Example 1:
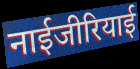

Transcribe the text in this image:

नाईजीरियाई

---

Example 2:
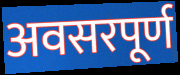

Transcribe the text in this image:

अवसरपूर्ण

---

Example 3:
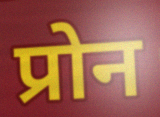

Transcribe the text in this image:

प्रोन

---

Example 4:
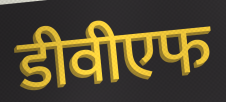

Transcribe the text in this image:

डीवीएफ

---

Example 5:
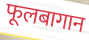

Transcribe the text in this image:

फूलबागान